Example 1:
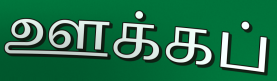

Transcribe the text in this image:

ஊக்கப்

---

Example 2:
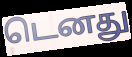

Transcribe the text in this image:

டெனது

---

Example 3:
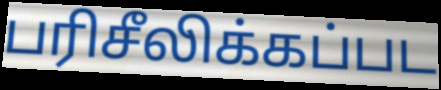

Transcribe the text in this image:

பரிசீலிக்கப்பட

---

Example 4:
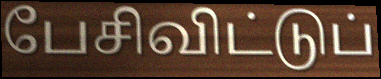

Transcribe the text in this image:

பேசிவிட்டுப்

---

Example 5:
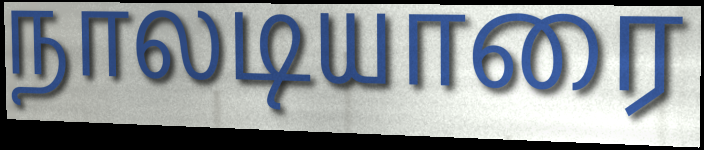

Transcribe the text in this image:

நாலடியாரை